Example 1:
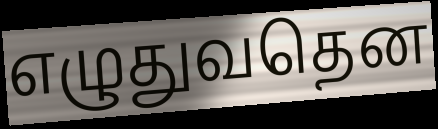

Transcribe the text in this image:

எழுதுவதென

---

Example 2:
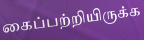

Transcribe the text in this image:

கைப்பற்றியிருக்க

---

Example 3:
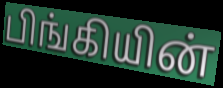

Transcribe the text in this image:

பிங்கியின்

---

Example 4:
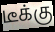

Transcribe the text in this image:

டீக்கு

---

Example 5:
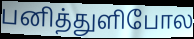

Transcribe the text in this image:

பனித்துளிபோல